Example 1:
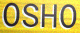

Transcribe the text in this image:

OSHO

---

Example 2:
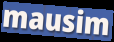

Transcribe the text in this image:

mausim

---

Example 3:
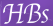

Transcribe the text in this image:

HBs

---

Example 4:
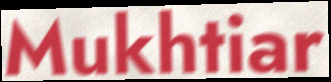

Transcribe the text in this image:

Mukhtiar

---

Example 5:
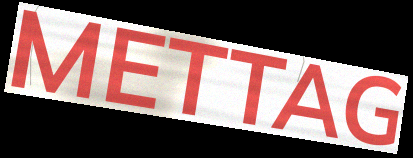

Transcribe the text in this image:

METTAG